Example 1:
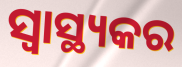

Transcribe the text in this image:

ସ୍ୱାସ୍ଥ୍ୟକର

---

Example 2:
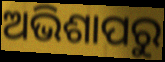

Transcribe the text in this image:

ଅଭିଶାପରୁ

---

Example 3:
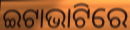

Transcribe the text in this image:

ଇଟାଭାଟିରେ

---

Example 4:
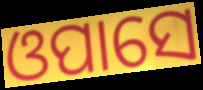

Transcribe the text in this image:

ଓପାସେ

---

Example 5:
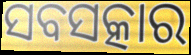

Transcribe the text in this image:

ସବସତ୍କାର